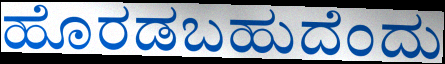
ಹೊರಡಬಹುದೆಂದು